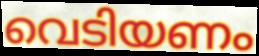
വെടിയണം